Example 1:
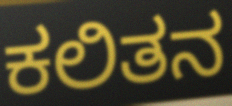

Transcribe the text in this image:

ಕಲಿತನ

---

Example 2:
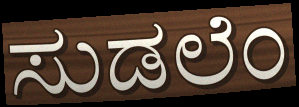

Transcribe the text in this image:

ಸುಡಲೆಂ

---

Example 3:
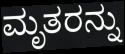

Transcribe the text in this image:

ಮೃತರನ್ನು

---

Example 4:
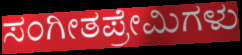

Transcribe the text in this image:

ಸಂಗೀತಪ್ರೇಮಿಗಳು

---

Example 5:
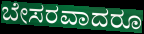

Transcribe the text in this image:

ಬೇಸರವಾದರೂ